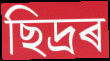
ছিদ্ৰৰ